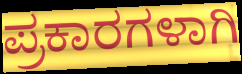
ಪ್ರಕಾರಗಳಾಗಿ